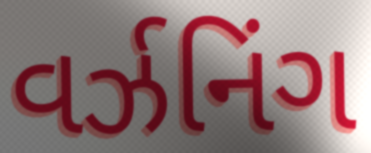
વર્ઝનિંગ